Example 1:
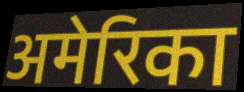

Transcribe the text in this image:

अमेरिका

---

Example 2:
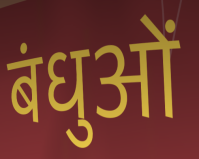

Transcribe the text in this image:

बंधुओं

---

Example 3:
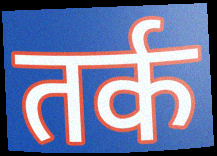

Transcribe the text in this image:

तर्क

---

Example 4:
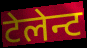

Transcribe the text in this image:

टेलेन्ट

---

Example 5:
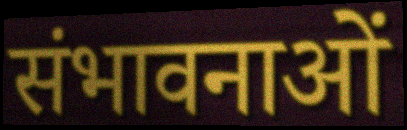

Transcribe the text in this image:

संभावनाओं